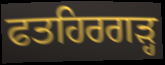
ਫਤਹਿਰਗੜ੍ਹ